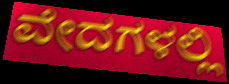
ವೇದಗಳಲ್ಲಿ